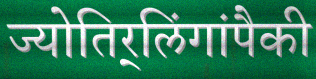
ज्योतिर्लिंगांपैकी